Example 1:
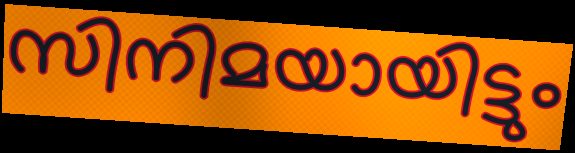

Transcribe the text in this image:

സിനിമയായിട്ടും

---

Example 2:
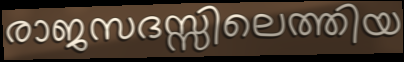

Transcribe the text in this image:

രാജസദസ്സിലെത്തിയ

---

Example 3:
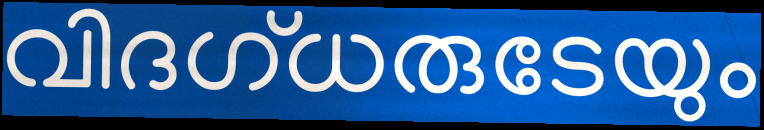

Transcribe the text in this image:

വിദഗ്ധരുടേയും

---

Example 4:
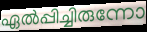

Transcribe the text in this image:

ഏൽപ്പിച്ചിരുന്നോ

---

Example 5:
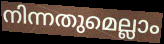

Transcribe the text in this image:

നിന്നതുമെല്ലാം